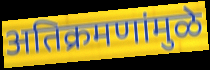
अतिक्रमणांमुळे